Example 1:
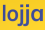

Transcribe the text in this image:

lojja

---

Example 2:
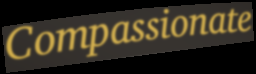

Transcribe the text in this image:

Compassionate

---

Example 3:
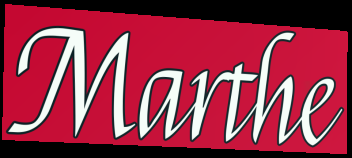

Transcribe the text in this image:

Marthe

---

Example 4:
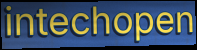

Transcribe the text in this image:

intechopen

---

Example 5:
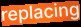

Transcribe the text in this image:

replacing